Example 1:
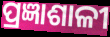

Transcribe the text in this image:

ପ୍ରଜ୍ଞାଶାଳୀ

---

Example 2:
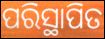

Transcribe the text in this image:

ପରିସ୍ଥାପିତ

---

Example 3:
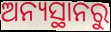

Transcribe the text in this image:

ଅନ୍ୟସ୍ଥାନରୁ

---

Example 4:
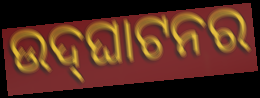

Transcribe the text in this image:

ଉଦ୍‍ଘାଟନର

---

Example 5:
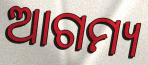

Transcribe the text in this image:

ଆଗମ୍ୟ